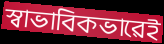
স্বাভাবিকভাৱেই